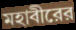
মহাবীরের